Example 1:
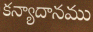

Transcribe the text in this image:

కన్యాదానము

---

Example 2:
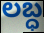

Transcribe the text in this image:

లబ్ధ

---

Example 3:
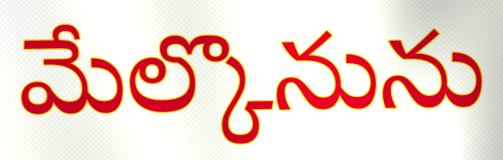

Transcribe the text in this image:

మేల్కొనును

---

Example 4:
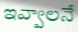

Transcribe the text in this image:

ఇవ్వాలనే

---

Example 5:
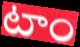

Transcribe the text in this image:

టాం